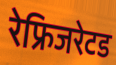
रेफ्रिजरेटड